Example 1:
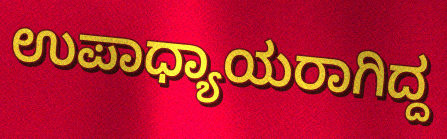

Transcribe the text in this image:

ಉಪಾಧ್ಯಾಯರಾಗಿದ್ದ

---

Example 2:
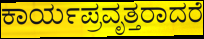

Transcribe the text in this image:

ಕಾರ್ಯಪ್ರವೃತ್ತರಾದರೆ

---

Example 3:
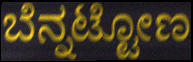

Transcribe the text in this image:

ಬೆನ್ನಟ್ಟೋಣ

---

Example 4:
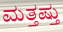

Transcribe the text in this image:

ಮತ್ತಷ್ತು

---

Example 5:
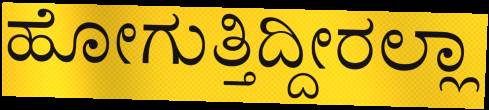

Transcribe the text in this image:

ಹೋಗುತ್ತಿದ್ದೀರಲ್ಲಾ